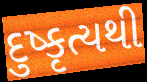
દુષ્કૃત્યથી